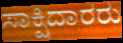
ಸಾಕ್ಷಿದಾರರು